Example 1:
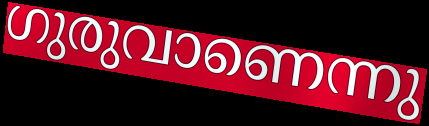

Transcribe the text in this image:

ഗുരുവാണെന്നു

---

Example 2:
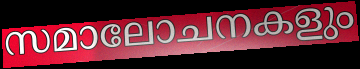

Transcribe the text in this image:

സമാലോചനകളും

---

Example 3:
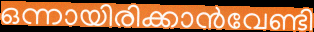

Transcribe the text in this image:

ഒന്നായിരിക്കാൻവേണ്ടി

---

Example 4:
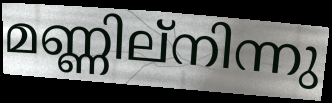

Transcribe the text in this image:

മണ്ണില്നിന്നു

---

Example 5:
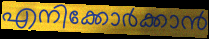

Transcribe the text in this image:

എനിക്കോർക്കാൻ